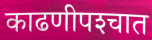
काढणीपश्‍चात